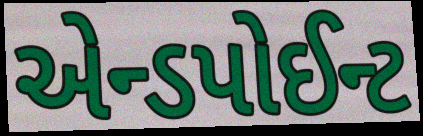
એન્ડપોઈન્ટ